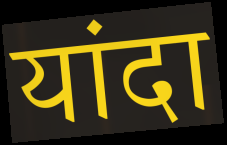
यांदा